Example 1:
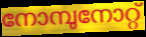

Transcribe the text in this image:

നോമ്പുനോറ്റ്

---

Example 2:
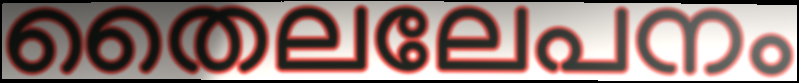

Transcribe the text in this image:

തൈലലേപനം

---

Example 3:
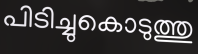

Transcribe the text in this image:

പിടിച്ചുകൊടുത്തു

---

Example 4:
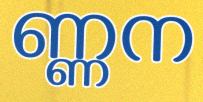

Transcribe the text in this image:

ണ്ണന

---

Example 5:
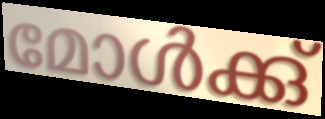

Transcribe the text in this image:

മോൾക്കു്